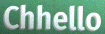
Chhello